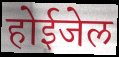
होईजेल